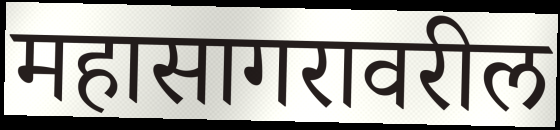
महासागरावरील